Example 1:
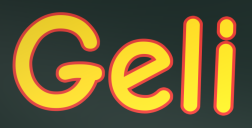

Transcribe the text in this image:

Geli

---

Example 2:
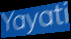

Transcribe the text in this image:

Yayati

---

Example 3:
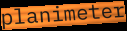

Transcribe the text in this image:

planimeter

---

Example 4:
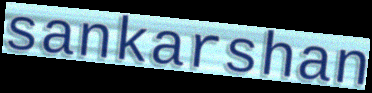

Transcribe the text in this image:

sankarshan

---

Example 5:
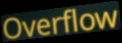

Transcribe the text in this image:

Overflow